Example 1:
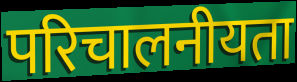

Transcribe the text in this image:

परिचालनीयता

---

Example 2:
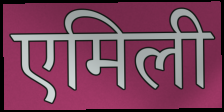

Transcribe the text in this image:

एमिली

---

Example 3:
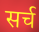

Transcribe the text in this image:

सर्च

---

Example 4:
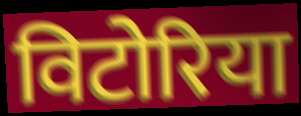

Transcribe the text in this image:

विटोरिया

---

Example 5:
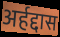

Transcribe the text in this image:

अर्हद्दास